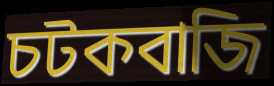
চটকবাজি